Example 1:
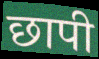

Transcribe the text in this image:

छापी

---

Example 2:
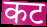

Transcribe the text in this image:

कट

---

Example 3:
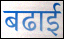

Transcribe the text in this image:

बढाई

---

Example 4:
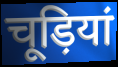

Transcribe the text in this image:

चूड़ियां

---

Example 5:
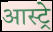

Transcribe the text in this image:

आस्ट्रे